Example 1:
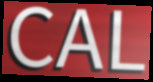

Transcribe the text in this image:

CAL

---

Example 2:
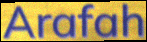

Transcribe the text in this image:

Arafah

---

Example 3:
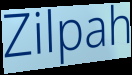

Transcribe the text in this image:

Zilpah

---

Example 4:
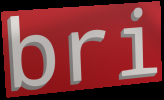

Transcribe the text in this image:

bri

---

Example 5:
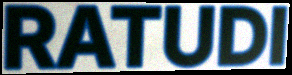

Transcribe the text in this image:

RATUDI